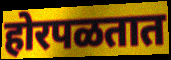
होरपळतात